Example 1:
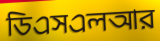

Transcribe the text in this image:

ডিএসএলআর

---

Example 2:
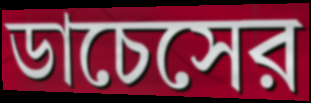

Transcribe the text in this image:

ডাচেসের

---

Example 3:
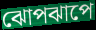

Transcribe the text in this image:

ঝোপঝাপে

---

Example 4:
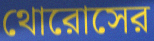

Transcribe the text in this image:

থোরোসের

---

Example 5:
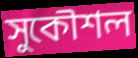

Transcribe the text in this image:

সুকৌশল